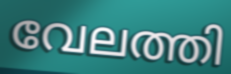
വേലത്തി